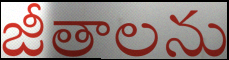
జీతాలను